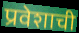
प्रवेशाची